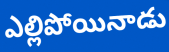
ఎల్లిపోయినాడు